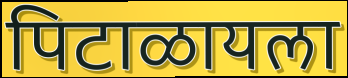
पिटाळायला